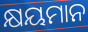
କ୍ଷୟମାନ